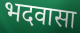
भदवासा